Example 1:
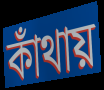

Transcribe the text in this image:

কাঁথায়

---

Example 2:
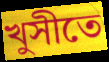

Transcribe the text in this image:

খুসীতে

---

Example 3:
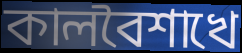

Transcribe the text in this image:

কালবৈশাখে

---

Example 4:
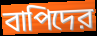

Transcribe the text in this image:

বাপিদের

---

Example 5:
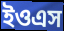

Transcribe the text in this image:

ইওএস